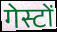
गेस्टों